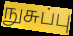
நுசுப்பு